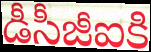
డీసీజీఐకి